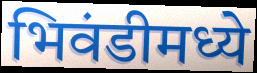
भिवंडीमध्ये